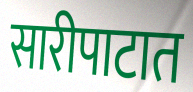
सारीपाटात